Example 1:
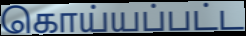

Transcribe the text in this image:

கொய்யப்பட்ட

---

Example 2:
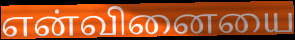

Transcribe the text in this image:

என்வினையை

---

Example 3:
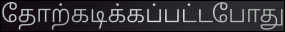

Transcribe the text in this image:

தோற்கடிக்கப்பட்டபோது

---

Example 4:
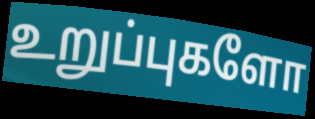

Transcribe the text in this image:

உறுப்புகளோ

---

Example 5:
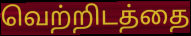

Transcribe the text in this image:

வெற்றிடத்தை